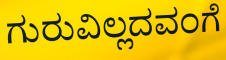
ಗುರುವಿಲ್ಲದವಂಗೆ